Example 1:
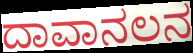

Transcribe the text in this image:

ದಾವಾನಲನ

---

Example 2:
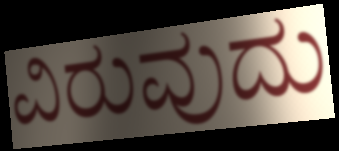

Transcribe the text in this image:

ವಿರುವುದು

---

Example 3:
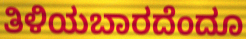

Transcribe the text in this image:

ತಿಳಿಯಬಾರದೆಂದೂ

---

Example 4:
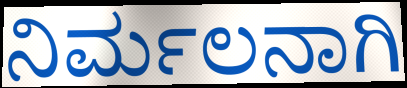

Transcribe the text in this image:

ನಿರ್ಮಲನಾಗಿ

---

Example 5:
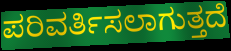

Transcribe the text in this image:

ಪರಿವರ್ತಿಸಲಾಗುತ್ತದೆ